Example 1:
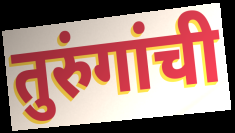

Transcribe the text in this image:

तुरुंगांची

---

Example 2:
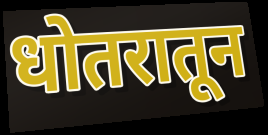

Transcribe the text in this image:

धोतरातून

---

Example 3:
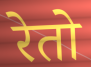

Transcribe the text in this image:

रेतो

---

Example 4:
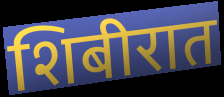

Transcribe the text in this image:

शिबीरात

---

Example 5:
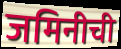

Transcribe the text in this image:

जमिनीची